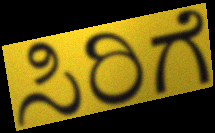
ಸಿರಿಗೆ